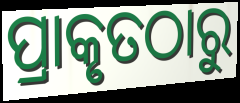
ପ୍ରାକୃତଠାରୁ